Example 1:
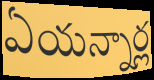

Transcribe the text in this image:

ఏయన్నార్ల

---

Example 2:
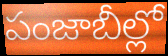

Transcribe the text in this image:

పంజాబీల్లో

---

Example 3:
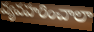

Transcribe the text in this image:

వ్యవహరించాలా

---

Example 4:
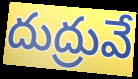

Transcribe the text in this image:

దుద్రువే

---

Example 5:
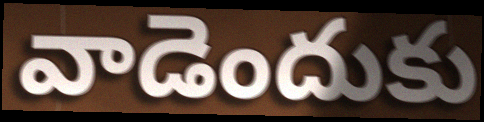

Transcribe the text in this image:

వాడెందుకు